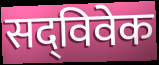
सद्‌विवेक